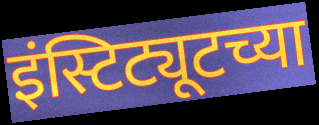
इंस्टिट्यूटच्या